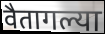
वैतागल्या